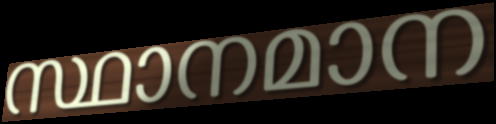
സ്ഥാനമാന